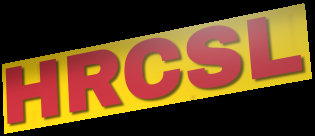
HRCSL